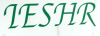
IESHR